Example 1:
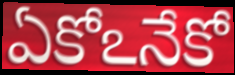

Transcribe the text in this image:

ఏకోఽనేకో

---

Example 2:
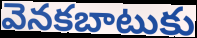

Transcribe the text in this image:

వెనకబాటుకు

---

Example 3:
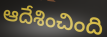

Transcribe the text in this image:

ఆదేశించింది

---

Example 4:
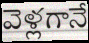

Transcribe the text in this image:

వెళ్లగానే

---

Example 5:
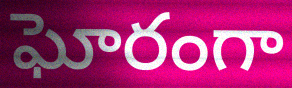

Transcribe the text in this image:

ఘోరంగా